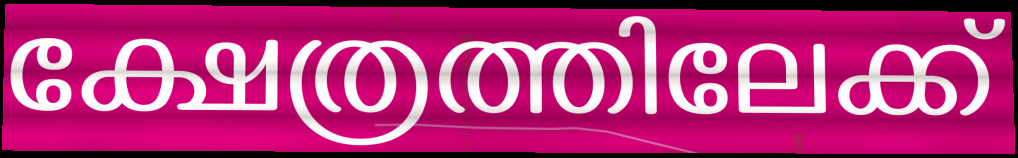
ക്ഷേത്രത്തിലേക്ക്